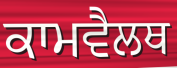
ਕਾਮਵੈਲਥ